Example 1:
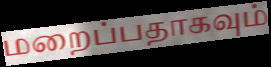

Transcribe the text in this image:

மறைப்பதாகவும்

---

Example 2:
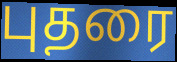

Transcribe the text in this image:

புதரை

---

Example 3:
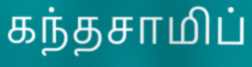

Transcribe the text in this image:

கந்தசாமிப்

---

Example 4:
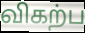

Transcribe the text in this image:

விகற்ப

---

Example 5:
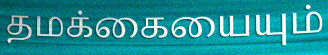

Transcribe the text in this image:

தமக்கையையும்